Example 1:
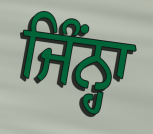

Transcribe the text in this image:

ਜਿੰਂਨ੍ਹਾ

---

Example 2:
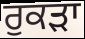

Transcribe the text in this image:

ਰੁਕੜਾ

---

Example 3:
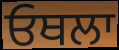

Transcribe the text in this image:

ਓਥਲਾ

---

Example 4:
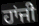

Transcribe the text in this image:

ਹਾਂਜੀ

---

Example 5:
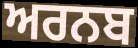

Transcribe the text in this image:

ਅਰਨਬ